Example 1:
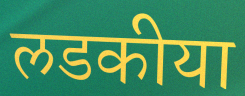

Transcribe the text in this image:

लडकीया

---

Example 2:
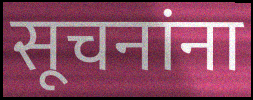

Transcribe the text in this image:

सूचनांना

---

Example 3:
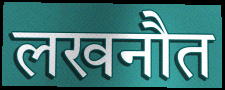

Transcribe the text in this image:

लखनौत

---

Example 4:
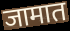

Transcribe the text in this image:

जामात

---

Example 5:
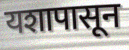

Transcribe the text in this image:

यशापासून